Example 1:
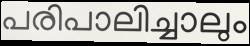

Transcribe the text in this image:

പരിപാലിച്ചാലും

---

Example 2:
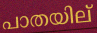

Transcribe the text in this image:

പാതയില്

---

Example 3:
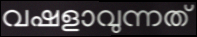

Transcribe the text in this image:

വഷളാവുന്നത്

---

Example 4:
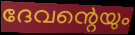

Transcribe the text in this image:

ദേവന്റെയും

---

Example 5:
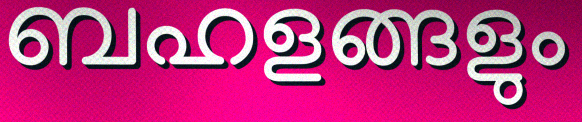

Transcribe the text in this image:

ബഹളങ്ങളും